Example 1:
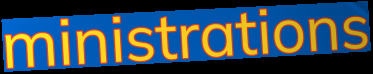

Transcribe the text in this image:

ministrations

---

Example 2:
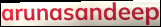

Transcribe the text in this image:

arunasandeep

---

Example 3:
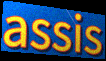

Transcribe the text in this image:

assis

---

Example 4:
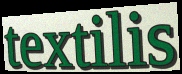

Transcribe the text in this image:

textilis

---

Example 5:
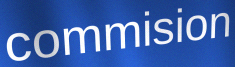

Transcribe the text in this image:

commision